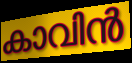
കാവിൻ